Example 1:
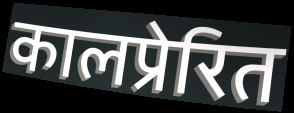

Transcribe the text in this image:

कालप्रेरित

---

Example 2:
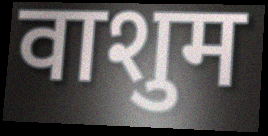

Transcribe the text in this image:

वाशुम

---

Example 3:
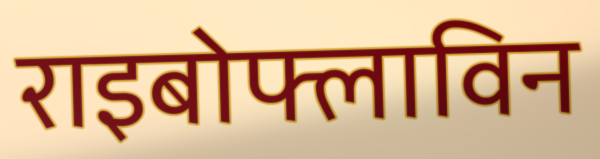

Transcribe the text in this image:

राइबोफ्लाविन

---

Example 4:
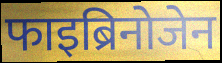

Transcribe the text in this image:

फाइब्रिनोजेन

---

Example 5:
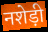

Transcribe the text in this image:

नशेड़ी